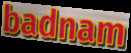
badnam